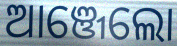
ଆଞ୍ଜେଲୋ